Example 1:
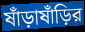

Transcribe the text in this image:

ষাঁড়াষাঁড়ির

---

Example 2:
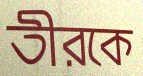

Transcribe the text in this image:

তীরকে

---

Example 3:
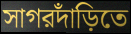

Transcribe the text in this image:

সাগরদাঁড়িতে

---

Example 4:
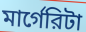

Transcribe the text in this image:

মার্গেরিটা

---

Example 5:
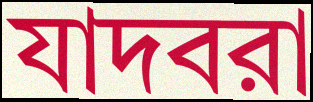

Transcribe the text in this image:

যাদবরা